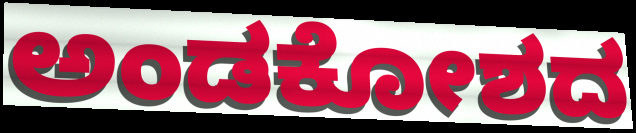
ಅಂಡಕೋಶದ